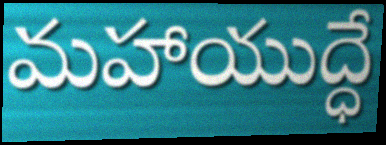
మహాయుద్ధే